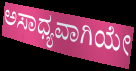
ಅಸಾಧ್ಯವಾಗಿಯೇ